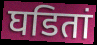
घडितां